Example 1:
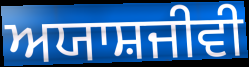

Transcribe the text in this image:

ਅਯਾਸ਼ਜੀਵੀ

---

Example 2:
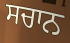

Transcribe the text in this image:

ਸਚਾਨ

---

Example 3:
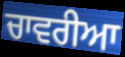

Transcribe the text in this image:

ਚਾਵਰੀਆ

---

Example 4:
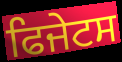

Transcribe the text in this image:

ਫਿਜੇਟਸ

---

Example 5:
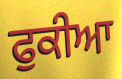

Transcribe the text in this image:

ਫੁਕੀਆ